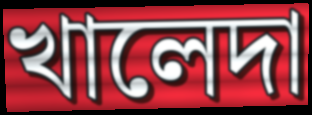
খালেদা